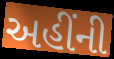
અહીંની